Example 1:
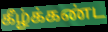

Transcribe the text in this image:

கீழ்க்கண்ட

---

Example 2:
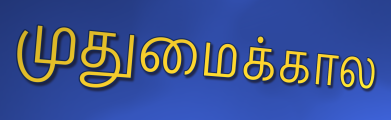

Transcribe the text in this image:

முதுமைக்கால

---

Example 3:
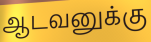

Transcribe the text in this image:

ஆடவனுக்கு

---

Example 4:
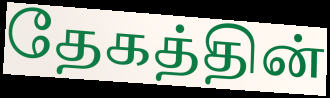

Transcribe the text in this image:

தேகத்தின்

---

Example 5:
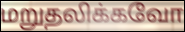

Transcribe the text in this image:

மறுதலிக்கவோ